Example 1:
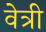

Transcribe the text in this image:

वेत्री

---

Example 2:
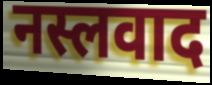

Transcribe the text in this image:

नस्लवाद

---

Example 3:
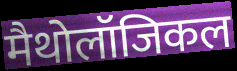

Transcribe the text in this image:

मैथोलॉजिकल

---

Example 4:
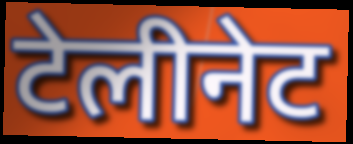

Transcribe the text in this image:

टेलीनेट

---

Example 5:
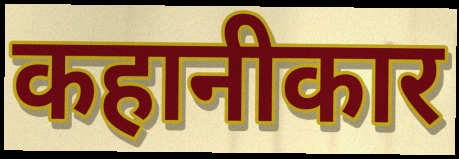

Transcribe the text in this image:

कहानीकार